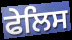
ਫੇਲਿਸ